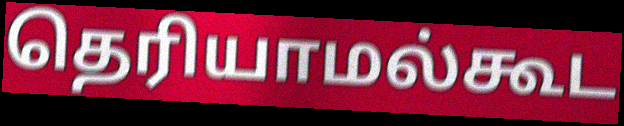
தெரியாமல்கூட